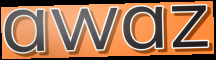
awaz